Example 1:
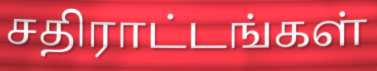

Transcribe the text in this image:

சதிராட்டங்கள்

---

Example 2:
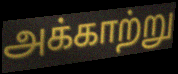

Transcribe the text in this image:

அக்காற்று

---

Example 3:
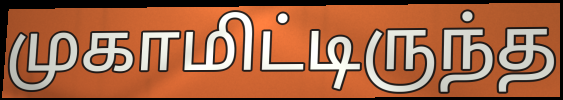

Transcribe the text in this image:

முகாமிட்டிருந்த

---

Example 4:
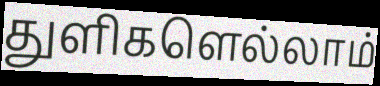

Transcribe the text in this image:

துளிகளெல்லாம்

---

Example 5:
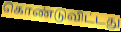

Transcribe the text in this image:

கொண்டுவிட்டது